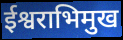
ईश्वराभिमुख